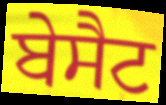
ਬੇਸੈਟ